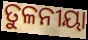
ତୁଳନୀୟା